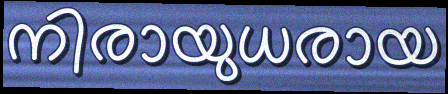
നിരായുധരായ